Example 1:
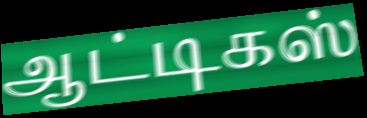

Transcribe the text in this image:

ஆட்டிகஸ்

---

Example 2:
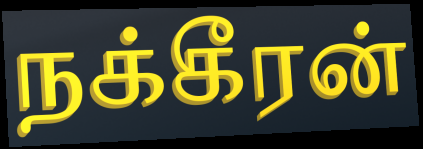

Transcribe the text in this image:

நக்கீரன்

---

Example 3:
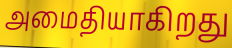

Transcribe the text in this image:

அமைதியாகிறது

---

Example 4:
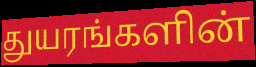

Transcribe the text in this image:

துயரங்களின்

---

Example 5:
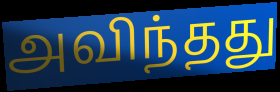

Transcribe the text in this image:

அவிந்தது